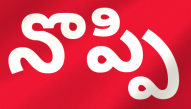
నొప్పి